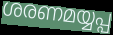
ശരണമയ്യപ്പ